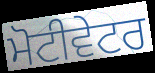
ਮੋਟੀਵੇਟਰ